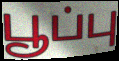
பூப்பு